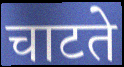
चाटते